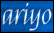
ariyo